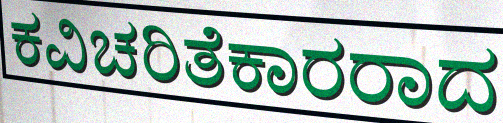
ಕವಿಚರಿತೆಕಾರರಾದ